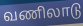
வணிலாடு